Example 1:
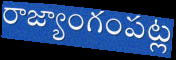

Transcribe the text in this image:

రాజ్యాంగంపట్ల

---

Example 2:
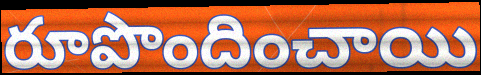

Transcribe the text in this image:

రూపొందించాయి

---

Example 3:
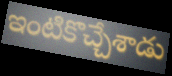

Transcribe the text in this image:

ఇంటికొచ్చేశాడు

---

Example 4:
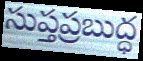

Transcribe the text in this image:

సుప్తప్రబుద్ధ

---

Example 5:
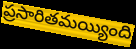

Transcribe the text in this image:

ప్రసారితమయ్యింది